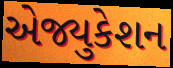
એજ્યુકેશન